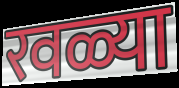
रवळ्या